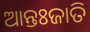
ଆନ୍ତଃଜାତି